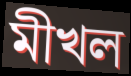
মীখল